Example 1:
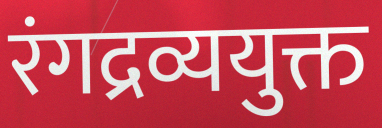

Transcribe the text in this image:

रंगद्रव्ययुक्त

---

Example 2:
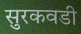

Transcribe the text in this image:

सुरकवडी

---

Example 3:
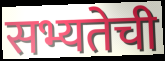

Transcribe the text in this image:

सभ्यतेची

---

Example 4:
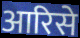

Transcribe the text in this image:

आरिसे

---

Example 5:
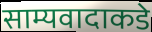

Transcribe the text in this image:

साम्यवादाकडे